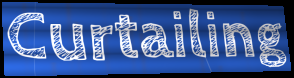
Curtailing